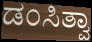
ಡಂಸಿತ್ವಾ